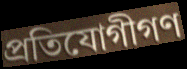
প্রতিযোগীগণ